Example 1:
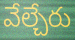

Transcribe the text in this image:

వేల్చేరు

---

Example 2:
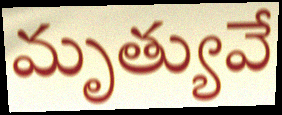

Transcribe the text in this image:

మృత్యువే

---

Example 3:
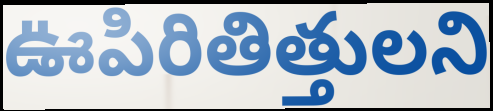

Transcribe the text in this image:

ఊపిరితిత్తులని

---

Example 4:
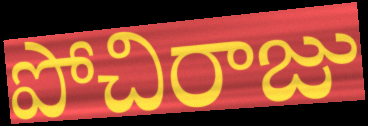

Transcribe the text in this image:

పోచిరాజు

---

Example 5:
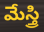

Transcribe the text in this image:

మేస్త్రి